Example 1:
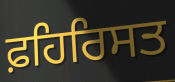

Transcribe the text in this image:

ਫ਼ਹਿਰਿਸਤ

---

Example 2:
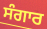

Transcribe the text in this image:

ਸੰਗਾਰ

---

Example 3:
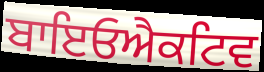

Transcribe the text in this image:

ਬਾਇਓਐਕਟਿਵ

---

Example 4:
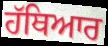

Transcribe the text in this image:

ਹੱਥਿਆਰ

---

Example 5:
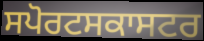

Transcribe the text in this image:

ਸਪੋਰਟਸਕਾਸਟਰ